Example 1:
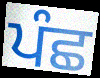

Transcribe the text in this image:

ਪੰਛ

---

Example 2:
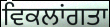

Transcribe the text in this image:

ਵਿਕਲਾਂਗਤਾ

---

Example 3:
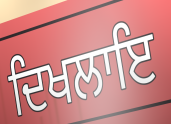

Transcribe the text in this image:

ਦਿਖਲਾਇ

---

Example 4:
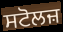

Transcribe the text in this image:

ਸਟੋਲਜ਼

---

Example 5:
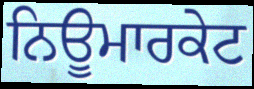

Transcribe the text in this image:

ਨਿਊਮਾਰਕੇਟ